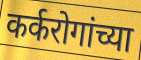
कर्करोगांच्या